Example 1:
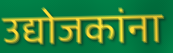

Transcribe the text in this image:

उद्योजकांना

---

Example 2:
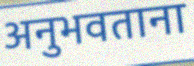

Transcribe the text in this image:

अनुभवताना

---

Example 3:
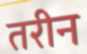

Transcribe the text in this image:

तरीन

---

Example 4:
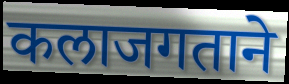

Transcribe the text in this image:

कलाजगताने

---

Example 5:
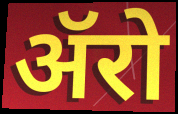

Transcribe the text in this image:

ॲरो